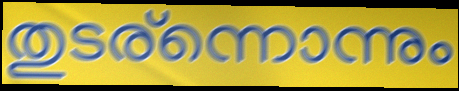
തുടര്ന്നൊന്നും